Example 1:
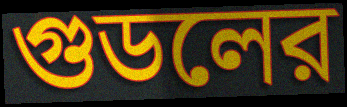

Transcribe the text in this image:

গুডলের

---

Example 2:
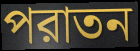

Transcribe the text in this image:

পরাতন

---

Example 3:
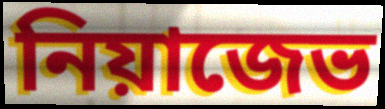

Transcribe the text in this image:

নিয়াজেভ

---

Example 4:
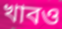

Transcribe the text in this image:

খাবও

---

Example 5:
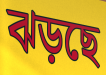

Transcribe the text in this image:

ঝড়ছে